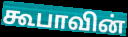
கூபாவின்